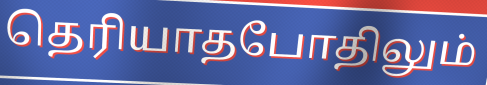
தெரியாதபோதிலும்